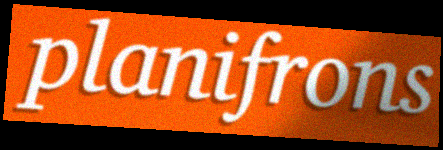
planifrons